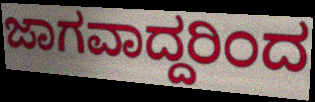
ಜಾಗವಾದ್ದರಿಂದ